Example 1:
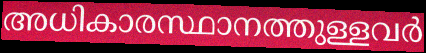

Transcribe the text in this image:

അധികാരസ്ഥാനത്തുള്ളവർ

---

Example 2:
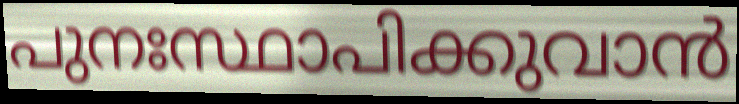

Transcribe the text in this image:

പുനഃസ്ഥാപിക്കുവാൻ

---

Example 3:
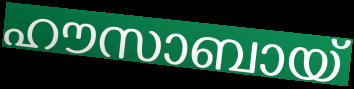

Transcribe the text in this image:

ഹൗസാബായ്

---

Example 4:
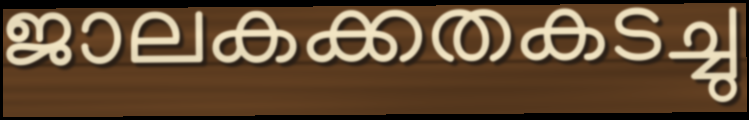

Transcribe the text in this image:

ജാലകക്കതകടച്ചു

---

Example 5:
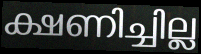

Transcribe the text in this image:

ക്ഷണിച്ചില്ല